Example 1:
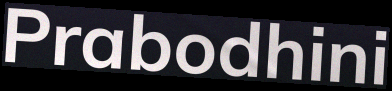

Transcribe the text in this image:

Prabodhini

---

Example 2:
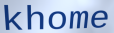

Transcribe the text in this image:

khome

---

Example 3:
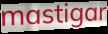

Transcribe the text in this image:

mastigar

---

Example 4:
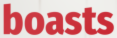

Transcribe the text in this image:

boasts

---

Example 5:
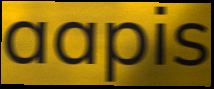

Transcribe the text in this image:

aapis